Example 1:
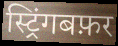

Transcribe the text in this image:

स्ट्रिंगबफ़र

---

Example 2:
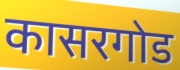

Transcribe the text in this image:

कासरगोड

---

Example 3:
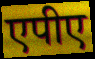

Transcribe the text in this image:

एपीए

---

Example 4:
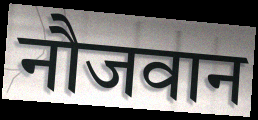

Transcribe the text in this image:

नौजवान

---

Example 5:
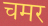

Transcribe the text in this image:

चमर